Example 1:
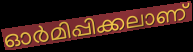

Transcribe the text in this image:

ഓർമിപ്പിക്കലാണ്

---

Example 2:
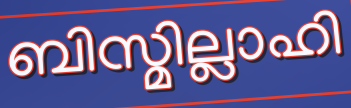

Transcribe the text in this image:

ബിസ്മില്ലാഹി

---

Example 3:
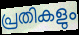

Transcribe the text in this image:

പ്രതികളും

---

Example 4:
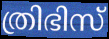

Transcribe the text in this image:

ത്രിഭിസ്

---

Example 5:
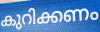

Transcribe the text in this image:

കുറിക്കണം